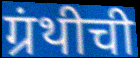
ग्रंथीची